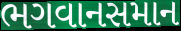
ભગવાનસમાન